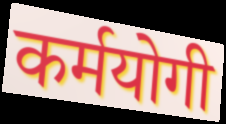
कर्मयोगी